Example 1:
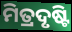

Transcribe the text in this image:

ମିତ୍ରଦୃଷ୍ଟି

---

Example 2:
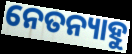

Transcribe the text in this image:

ନେତନ୍ୟାହୁ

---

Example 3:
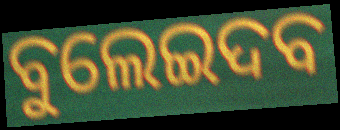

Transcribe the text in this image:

ବୁଲେଇଦବ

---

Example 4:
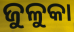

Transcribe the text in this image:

ଜୁଳୁକା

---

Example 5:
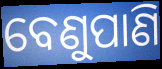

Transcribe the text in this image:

ବେଣୁପାଣି